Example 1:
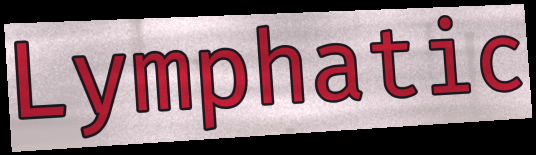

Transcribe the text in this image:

Lymphatic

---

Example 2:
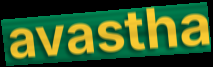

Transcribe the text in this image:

avastha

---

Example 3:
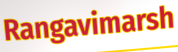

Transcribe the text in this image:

Rangavimarsh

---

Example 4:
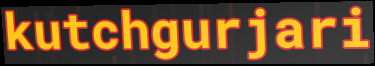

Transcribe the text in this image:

kutchgurjari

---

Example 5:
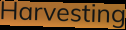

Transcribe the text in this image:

Harvesting